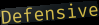
Defensive